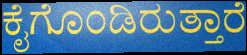
ಕೈಗೊಂಡಿರುತ್ತಾರೆ